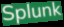
Splunk